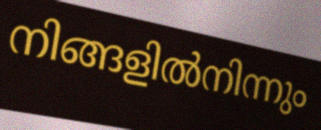
നിങ്ങളിൽനിന്നും